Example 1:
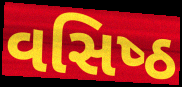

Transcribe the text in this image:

વસિષ્‍ઠ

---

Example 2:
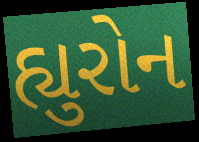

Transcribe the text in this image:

હ્યુરોન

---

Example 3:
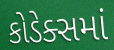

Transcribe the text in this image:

કોડેક્સમાં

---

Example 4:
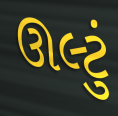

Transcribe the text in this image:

ઊલ્ટું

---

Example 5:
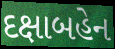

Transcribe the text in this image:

દક્ષાબહેન